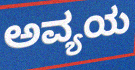
ಅವ್ಯಯ